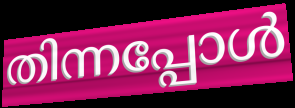
തിന്നപ്പോൾ